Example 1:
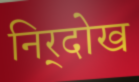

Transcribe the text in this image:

निर्दोख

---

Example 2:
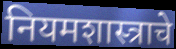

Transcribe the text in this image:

नियमशास्त्राचे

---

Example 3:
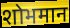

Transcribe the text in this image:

शोभमान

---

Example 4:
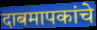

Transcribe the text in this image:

दाबमापकांचे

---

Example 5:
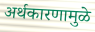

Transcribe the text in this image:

अर्थकारणामुळे